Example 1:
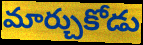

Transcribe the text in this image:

మార్చుకోడు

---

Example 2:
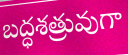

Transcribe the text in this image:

బద్ధశత్రువుగా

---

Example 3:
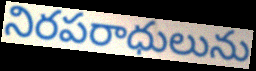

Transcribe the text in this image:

నిరపరాధులును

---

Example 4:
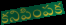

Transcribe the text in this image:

కనిపింపక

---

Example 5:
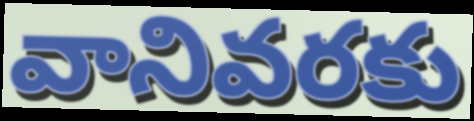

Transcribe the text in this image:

వానివరకు